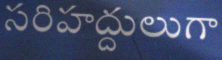
సరిహద్దులుగా